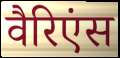
वैरिएंस